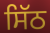
ਸਿੱਠ